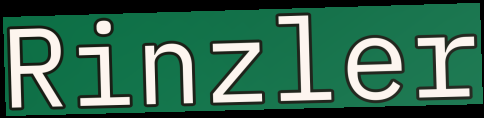
Rinzler